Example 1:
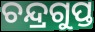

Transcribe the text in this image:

ଚନ୍ଦ୍ରଗୁପ୍ତ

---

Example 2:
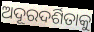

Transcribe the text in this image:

ଅଦୂରଦର୍ଶିତାକୁ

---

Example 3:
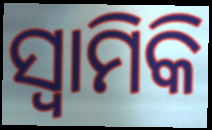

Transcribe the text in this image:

ସ୍ୱାମିକି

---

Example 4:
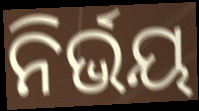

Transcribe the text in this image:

ନିର୍ଭୟ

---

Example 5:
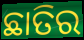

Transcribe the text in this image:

ଛାତିର